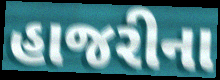
હાજરીના